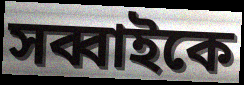
সব্বাইকে